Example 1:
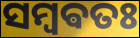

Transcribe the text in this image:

ସମ୍ବଵତଃ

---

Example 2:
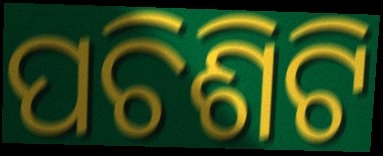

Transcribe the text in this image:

ପଚିଶିଟି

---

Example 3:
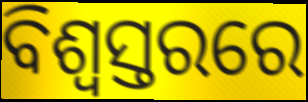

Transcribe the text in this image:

ବିଶ୍ୱସ୍ତରରେ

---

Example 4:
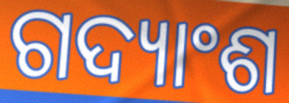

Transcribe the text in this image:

ଗଦ୍ୟାଂଶ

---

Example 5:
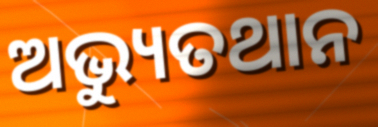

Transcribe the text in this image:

ଅଭ୍ୟୁତଥାନ